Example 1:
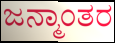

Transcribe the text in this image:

ಜನ್ಮಾಂತರ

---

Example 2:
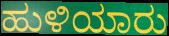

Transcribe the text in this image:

ಹುಳಿಯಾರು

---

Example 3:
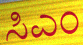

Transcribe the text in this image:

ಸಿಎಂ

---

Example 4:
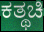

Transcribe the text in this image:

ಕತ್ಥಚಿ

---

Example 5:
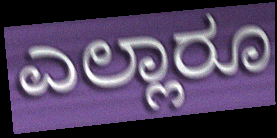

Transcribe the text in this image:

ಎಲ್ಲಾರೂ